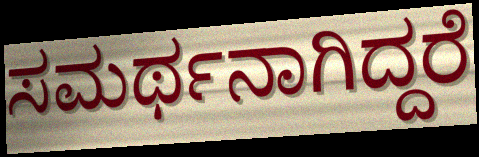
ಸಮರ್ಥನಾಗಿದ್ದರೆ